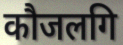
कौजलगि